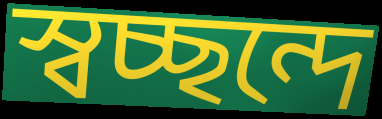
স্বচ্ছন্দে